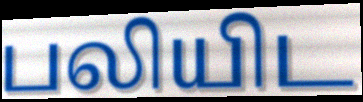
பலியிட